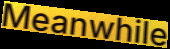
Meanwhile